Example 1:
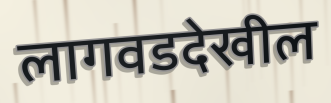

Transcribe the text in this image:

लागवडदेखील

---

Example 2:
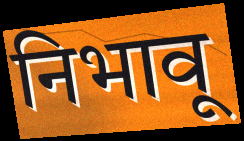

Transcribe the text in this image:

निभावू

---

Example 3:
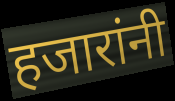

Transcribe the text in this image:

हजारांनी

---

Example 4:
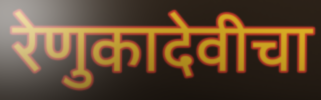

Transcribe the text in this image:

रेणुकादेवीचा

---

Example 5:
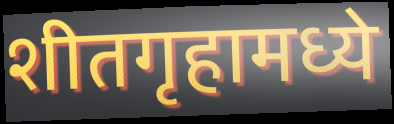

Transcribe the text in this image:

शीतगृहामध्ये